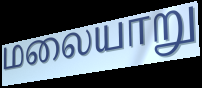
மலையாறு